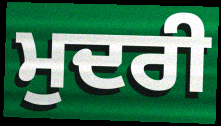
ਮੁਦਰੀ